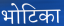
भोटिका